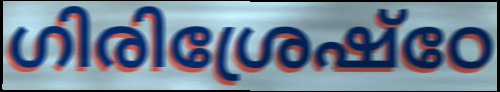
ഗിരിശ്രേഷ്ഠേ